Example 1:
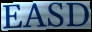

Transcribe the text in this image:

EASD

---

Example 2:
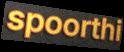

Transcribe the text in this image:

spoorthi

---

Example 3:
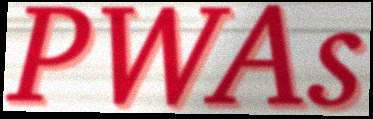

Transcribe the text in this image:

PWAs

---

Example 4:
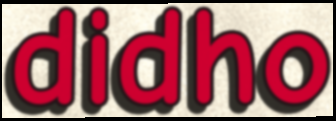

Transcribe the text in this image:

didho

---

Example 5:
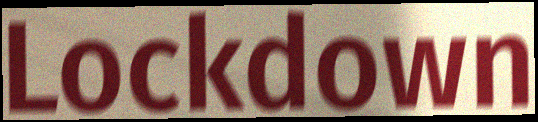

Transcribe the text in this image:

Lockdown